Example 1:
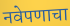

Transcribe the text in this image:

नवेपणाचा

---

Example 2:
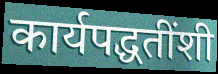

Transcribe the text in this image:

कार्यपद्धतींशी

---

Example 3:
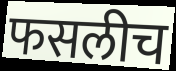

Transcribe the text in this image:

फसलीच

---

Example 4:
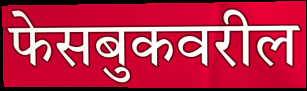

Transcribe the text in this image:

फेसबुकवरील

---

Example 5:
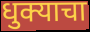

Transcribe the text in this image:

धुक्याचा